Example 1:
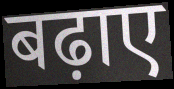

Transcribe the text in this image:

बढ़ाए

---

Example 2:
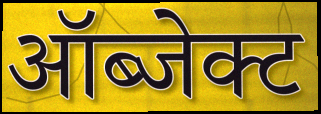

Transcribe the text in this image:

ऑब्जेक्ट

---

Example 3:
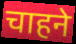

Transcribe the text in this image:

चाहने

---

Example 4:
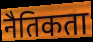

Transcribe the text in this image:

नैतिकता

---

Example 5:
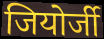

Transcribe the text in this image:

जियोर्जी